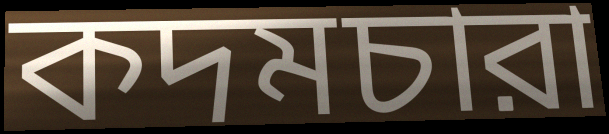
কদমচারা